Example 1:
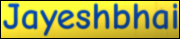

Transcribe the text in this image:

Jayeshbhai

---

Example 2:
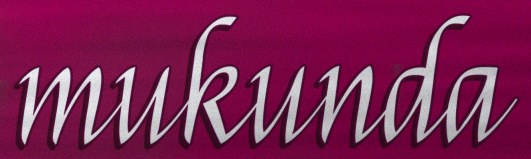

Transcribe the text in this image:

mukunda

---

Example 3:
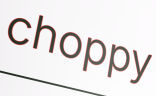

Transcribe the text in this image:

choppy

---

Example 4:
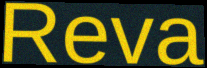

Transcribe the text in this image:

Reva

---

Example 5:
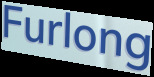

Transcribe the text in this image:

Furlong